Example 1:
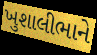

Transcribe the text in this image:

ખુશાલીભાને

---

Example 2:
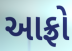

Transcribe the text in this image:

આફ્રો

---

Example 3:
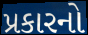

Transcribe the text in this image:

પ્રકારનો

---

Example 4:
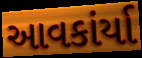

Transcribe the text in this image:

આવકાંર્યા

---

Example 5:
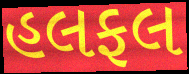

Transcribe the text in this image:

હલફલ